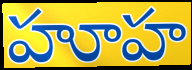
హూహ